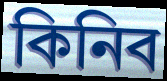
কিনিব